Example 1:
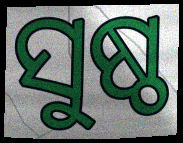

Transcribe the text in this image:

ସୁଷ୍ଠ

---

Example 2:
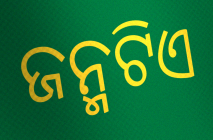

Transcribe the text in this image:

ଜନ୍ମଟିଏ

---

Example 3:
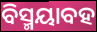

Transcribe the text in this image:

ବିସ୍ମୟାବହ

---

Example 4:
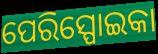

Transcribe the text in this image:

ପେରିସ୍ପୋଇକା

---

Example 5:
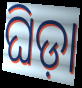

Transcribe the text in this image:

ଘିଡ଼ା